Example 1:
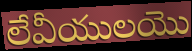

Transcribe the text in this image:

లేవీయులయొ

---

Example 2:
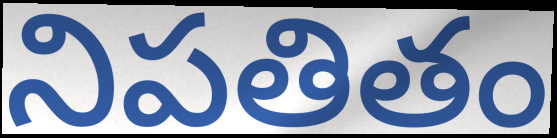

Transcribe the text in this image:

నిపతితం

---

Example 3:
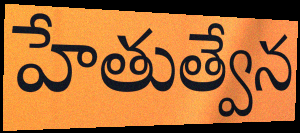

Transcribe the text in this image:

హేతుత్వేన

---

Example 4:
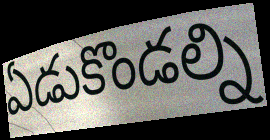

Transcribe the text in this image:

ఏడుకొండల్ని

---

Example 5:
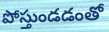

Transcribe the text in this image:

పోస్తుండడంతో